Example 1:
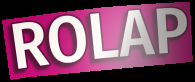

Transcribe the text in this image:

ROLAP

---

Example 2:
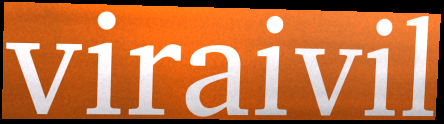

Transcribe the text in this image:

viraivil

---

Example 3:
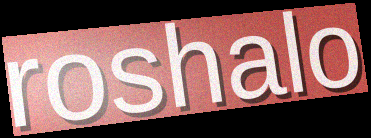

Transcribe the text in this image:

roshalo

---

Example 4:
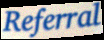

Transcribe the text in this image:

Referral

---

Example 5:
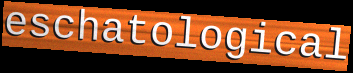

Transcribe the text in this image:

eschatological